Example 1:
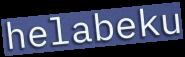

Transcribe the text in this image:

helabeku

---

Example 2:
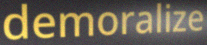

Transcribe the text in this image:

demoralize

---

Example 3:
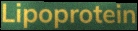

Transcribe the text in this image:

Lipoprotein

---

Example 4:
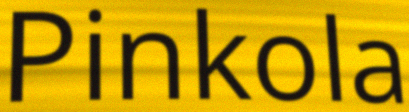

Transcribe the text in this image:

Pinkola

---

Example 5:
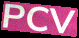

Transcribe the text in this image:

PCV